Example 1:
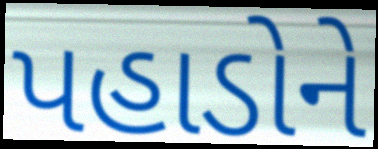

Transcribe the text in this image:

પહાડોને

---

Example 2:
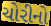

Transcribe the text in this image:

ચોરીનો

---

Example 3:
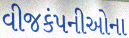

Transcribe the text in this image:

વીજકંપનીઓના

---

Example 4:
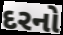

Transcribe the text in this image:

દરનો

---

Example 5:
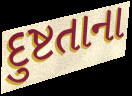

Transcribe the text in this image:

દુષ્ટતાના